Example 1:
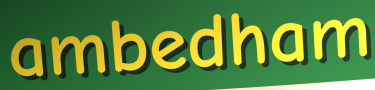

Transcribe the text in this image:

ambedham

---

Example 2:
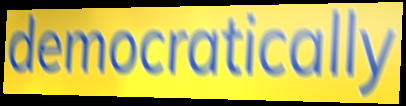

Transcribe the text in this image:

democratically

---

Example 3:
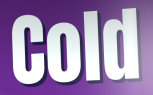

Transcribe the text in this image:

Cold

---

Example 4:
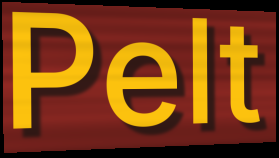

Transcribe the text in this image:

Pelt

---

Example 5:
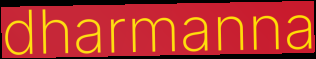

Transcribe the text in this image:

dharmanna